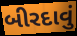
બીરદાવું